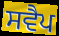
ਸਵੈਪ